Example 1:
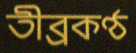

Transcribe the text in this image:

তীব্রকণ্ঠ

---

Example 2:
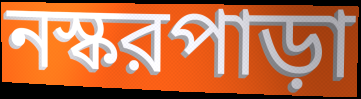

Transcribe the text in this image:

নস্করপাড়া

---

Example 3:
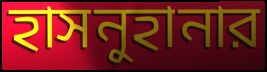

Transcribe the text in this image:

হাসনুহানার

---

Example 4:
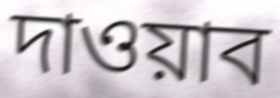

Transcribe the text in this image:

দাওয়াব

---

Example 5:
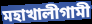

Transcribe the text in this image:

মহাখালীগামী